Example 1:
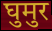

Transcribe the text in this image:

घुमुर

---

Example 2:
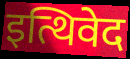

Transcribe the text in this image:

इत्थिवेद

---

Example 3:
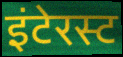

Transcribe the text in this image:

इंटेरस्ट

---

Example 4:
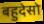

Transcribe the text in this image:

बहुदेसो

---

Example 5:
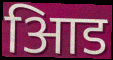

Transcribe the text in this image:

आिड